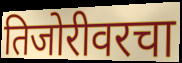
तिजोरीवरचा